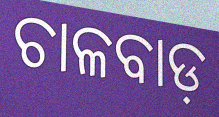
ଚାଳବାଡ଼